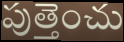
పుత్తెంచు